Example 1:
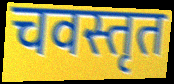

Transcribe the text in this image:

चवस्तृत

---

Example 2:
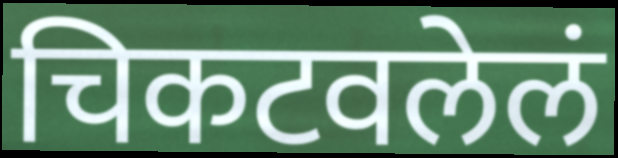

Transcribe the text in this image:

चिकटवलेलं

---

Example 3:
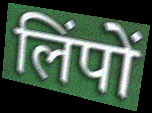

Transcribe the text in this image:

लिंपों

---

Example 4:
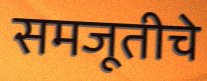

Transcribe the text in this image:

समजूतीचे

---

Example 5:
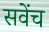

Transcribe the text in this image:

सवेंच